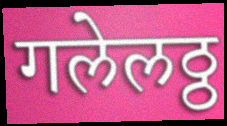
गलेलठ्ठ